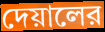
দেয়ালের